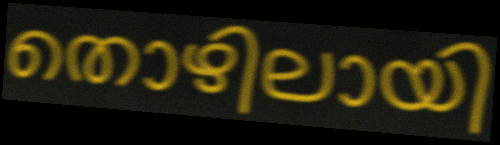
തൊഴിലായി